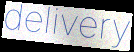
delivery